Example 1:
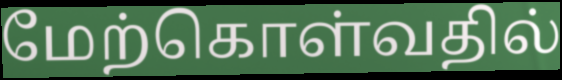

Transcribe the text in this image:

மேற்கொள்வதில்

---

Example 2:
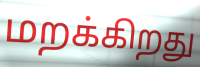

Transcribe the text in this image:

மறக்கிறது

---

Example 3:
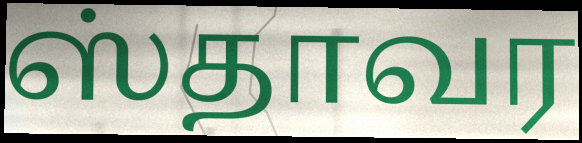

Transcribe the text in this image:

ஸ்தாவர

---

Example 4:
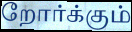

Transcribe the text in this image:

றோர்க்கும்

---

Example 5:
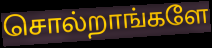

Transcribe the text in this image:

சொல்றாங்களே